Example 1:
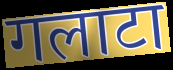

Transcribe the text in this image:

गलाटा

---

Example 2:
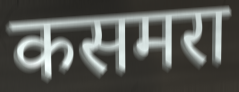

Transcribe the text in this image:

कसमरा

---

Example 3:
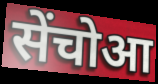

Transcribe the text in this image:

सेंचोआ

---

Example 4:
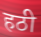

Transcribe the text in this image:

हठी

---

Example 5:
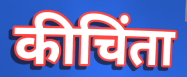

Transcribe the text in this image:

कीचिंता